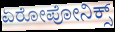
ಏರೋಪೋನಿಕ್ಸ್